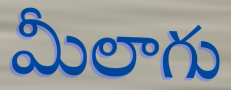
మీలాగు